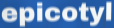
epicotyl